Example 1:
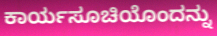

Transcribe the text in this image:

ಕಾರ್ಯಸೂಚಿಯೊಂದನ್ನು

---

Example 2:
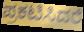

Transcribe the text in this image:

ಪ್ರಕಟಿಸಿದರೆ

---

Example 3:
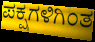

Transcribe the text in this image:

ಪಕ್ಷಗಳಿಗಿಂತ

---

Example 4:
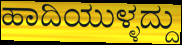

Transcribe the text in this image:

ಹಾದಿಯುಳ್ಳದ್ದು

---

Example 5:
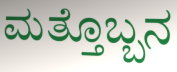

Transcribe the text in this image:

ಮತ್ತೊಬ್ಬನ